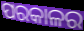
ପରକାଳର